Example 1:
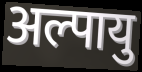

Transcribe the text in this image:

अल्पायु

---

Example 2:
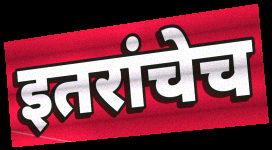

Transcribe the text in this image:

इतरांचेच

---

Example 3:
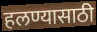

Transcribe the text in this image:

हलण्यासाठी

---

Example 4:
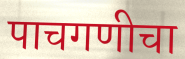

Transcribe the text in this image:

पाचगणीचा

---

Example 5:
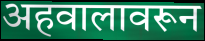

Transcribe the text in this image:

अहवालावरून